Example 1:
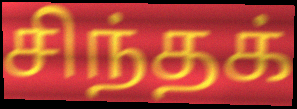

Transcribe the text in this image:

சிந்தக்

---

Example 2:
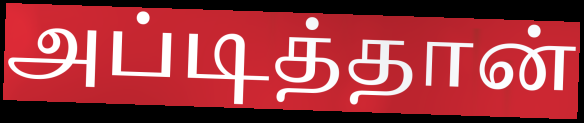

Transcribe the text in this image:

அப்டித்தான்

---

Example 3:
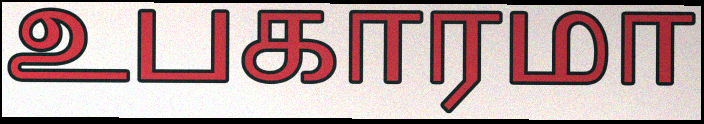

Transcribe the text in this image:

உபகாரமா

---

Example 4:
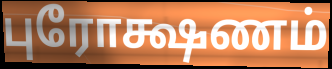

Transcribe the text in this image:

புரோக்ஷணம்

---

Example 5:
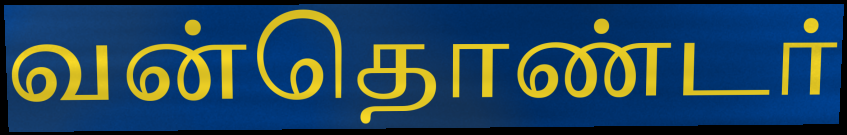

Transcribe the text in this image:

வன்தொண்டர்